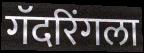
गॅदरिंगला